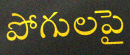
పోగులపై